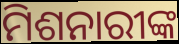
ମିଶନାରୀଙ୍କ